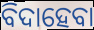
ବିଦାହେବା